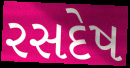
રસદેષ